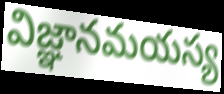
విజ్ఞానమయస్య